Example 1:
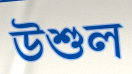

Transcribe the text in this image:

উশুল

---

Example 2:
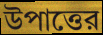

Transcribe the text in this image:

উপাত্তের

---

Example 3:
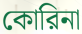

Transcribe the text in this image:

কোরিনা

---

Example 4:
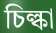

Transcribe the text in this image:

চিল্কা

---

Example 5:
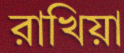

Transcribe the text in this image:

রাখিয়া